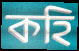
কহি